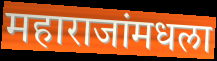
महाराजांमधला